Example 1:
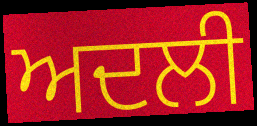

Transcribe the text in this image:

ਅਦਲੀ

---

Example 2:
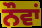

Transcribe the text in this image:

ਨੌਵਾਂ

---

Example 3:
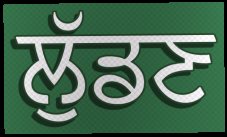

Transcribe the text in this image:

ਲੁੱਡਣ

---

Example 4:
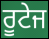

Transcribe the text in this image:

ਰੂਟੇਜ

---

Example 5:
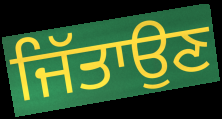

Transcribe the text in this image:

ਜਿੱਤਾਉਣ